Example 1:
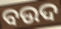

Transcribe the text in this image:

ବଉଦ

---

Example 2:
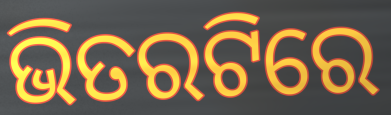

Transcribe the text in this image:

ଭିତରଟିରେ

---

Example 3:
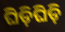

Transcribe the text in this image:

ଘିଡ଼ିଘିଡ଼ି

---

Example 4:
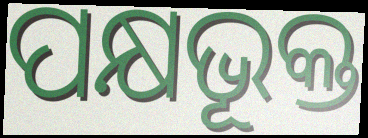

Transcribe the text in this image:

ପକ୍ଷଭୂକ୍ତ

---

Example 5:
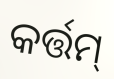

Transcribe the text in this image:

କର୍ତ୍ତମ୍